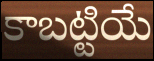
కాబట్టియే